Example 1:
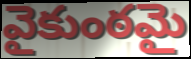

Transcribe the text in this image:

వైకుంఠమై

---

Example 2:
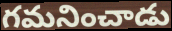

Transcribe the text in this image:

గమనించాడు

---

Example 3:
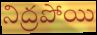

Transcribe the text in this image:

నిద్రపోయి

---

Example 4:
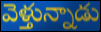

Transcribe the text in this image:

వెళ్తున్నాడు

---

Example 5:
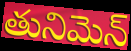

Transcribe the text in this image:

తునిమెన్